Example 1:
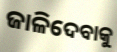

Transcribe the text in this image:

ଜାଳିଦେବାକୁ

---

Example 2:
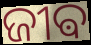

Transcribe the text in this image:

ଜୀଵ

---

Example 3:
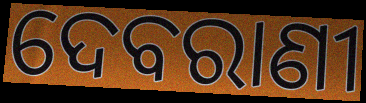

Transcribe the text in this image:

ଦେବରାଣୀ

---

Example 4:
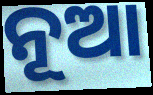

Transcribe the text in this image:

ନୂଆ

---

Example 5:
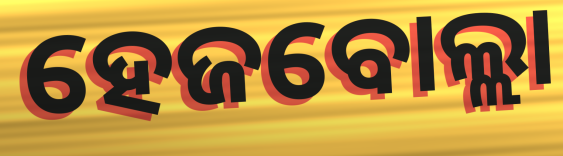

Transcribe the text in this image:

ହେଜବୋଲ୍ଲା